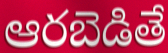
ఆరబెడితే